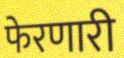
फेरणारी